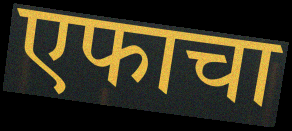
एफाचा